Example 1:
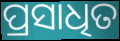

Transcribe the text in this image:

ପ୍ରସାଧିତ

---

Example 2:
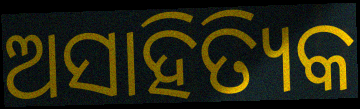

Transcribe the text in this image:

ଅସାହିତ୍ୟିକ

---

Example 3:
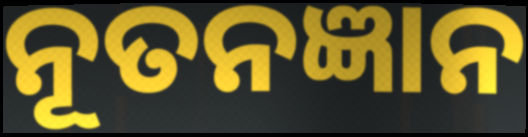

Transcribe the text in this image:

ନୂତନଜ୍ଞାନ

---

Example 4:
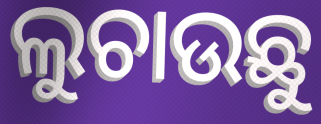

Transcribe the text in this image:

ଲୁଚାଉଛୁ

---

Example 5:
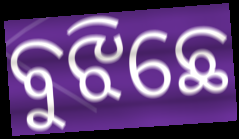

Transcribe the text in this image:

ବୁଝିଛେ